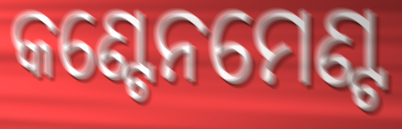
କଣ୍ଟେନମେଣ୍ଟ